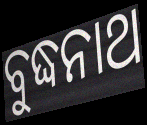
ବୁଦ୍ଧନାଥ